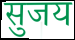
सुजय